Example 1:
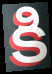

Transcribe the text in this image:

కి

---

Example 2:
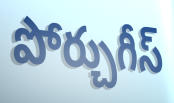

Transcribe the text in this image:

పోర్చుగీస్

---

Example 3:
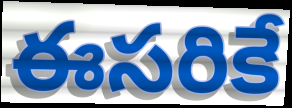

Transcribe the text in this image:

ఈసరికే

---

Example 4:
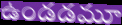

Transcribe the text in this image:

ఉండడమూ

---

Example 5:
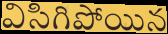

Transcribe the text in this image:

విసిగిపోయిన